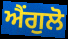
ਐਂਗੁਲੋ